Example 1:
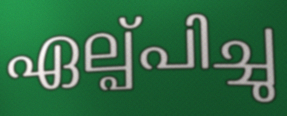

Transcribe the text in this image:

ഏല്പ്പിച്ചു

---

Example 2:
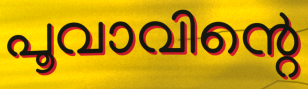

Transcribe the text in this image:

പൂവാവിന്റെ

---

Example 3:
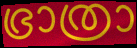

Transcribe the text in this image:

ഭ്രാത്രാ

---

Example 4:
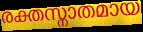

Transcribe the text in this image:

രക്തസ്നാതമായ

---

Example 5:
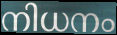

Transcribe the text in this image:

നിധനം